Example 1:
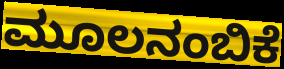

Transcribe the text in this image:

ಮೂಲನಂಬಿಕೆ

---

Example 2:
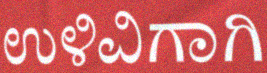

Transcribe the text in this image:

ಉಳಿವಿಗಾಗಿ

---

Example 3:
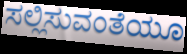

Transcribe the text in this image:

ಸಲ್ಲಿಸುವಂತೆಯೂ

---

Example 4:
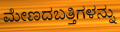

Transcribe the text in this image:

ಮೇಣದಬತ್ತಿಗಳನ್ನು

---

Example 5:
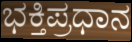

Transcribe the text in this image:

ಭಕ್ತಿಪ್ರಧಾನ